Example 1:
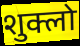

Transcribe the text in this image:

शुक्लो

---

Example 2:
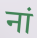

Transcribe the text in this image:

नां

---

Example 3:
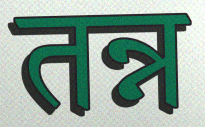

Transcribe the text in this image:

तन्न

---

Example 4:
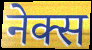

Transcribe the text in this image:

नेक्स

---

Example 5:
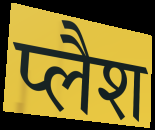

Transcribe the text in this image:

प्लैश